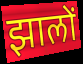
झालों